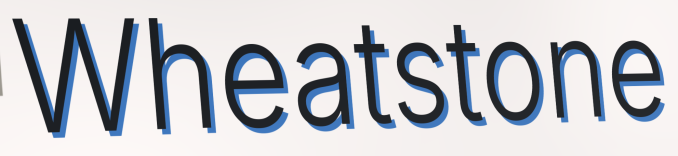
Wheatstone